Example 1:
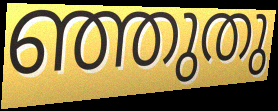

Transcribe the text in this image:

ഞ്ഞുതു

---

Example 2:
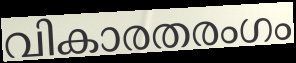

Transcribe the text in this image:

വികാരതരംഗം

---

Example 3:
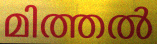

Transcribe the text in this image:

മിത്തൽ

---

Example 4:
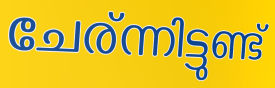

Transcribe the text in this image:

ചേര്ന്നിട്ടുണ്ട്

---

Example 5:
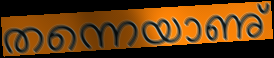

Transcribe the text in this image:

തന്നെയാണു്